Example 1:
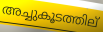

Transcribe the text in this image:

അച്ചുകൂടത്തില്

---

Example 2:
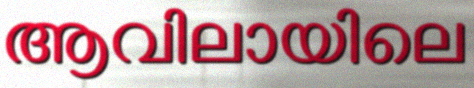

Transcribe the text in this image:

ആവിലായിലെ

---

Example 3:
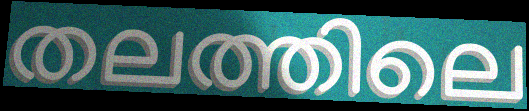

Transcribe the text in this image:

തലത്തിലെ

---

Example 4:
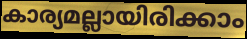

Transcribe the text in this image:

കാര്യമല്ലായിരിക്കാം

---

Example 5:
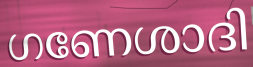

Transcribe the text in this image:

ഗണേശാദി